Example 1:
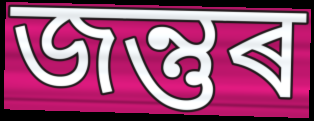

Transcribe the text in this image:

জন্তুৰ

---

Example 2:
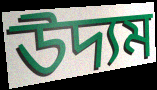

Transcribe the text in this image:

উদ্যম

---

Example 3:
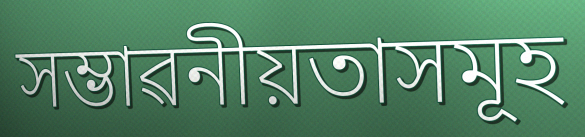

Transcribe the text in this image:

সম্ভাৱনীয়তাসমূহ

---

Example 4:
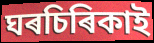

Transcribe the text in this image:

ঘৰচিৰিকাই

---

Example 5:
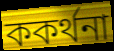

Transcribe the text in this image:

ককৰ্থনা